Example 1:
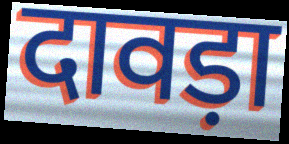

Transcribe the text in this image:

दावड़ा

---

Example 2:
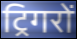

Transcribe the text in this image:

ट्रिगरों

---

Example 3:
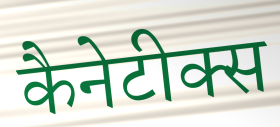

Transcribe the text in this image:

कैनेटीक्स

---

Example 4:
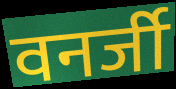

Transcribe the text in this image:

वनर्जी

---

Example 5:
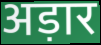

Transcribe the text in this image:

अड़ार